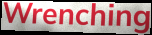
Wrenching